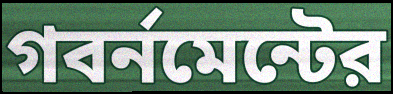
গবর্নমেন্টের